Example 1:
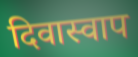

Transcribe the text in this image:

दिवास्वाप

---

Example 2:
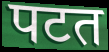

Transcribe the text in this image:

पटत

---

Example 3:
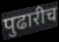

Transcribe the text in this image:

पुढारीच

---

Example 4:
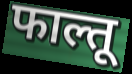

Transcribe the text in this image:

फाल्तू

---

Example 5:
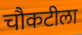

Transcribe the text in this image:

चौकटीला